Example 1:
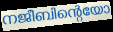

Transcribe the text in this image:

നജീബിന്റെയോ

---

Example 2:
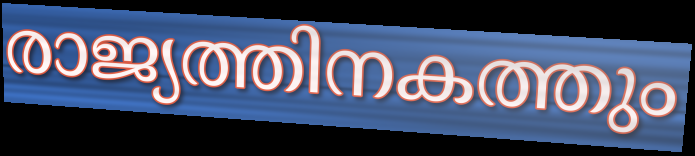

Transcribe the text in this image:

രാജ്യത്തിനകത്തും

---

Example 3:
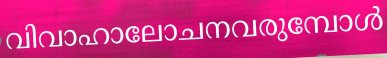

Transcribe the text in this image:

വിവാഹാലോചനവരുമ്പോൾ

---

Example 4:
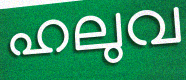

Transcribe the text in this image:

ഹലുവ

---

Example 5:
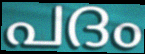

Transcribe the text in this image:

പദം